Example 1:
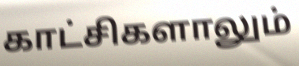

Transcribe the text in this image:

காட்சிகளாலும்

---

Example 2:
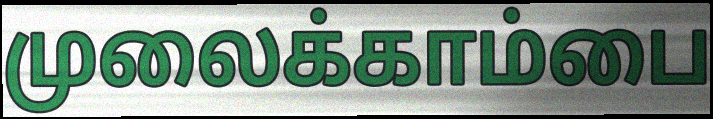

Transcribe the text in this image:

முலைக்காம்பை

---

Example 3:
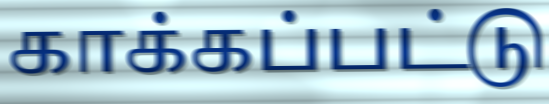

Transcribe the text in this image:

காக்கப்பட்டு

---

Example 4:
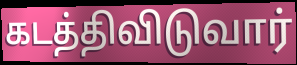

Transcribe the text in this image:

கடத்திவிடுவார்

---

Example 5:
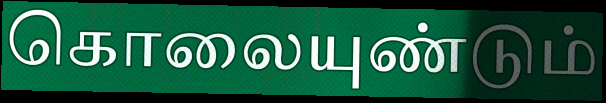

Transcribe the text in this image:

கொலையுண்டும்